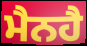
ਮੈਨਹੈ